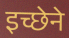
इच्छेने